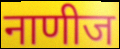
नाणीज